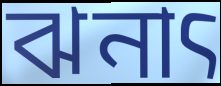
ঝনাৎ